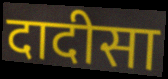
दादीसा